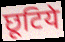
छूटिये